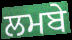
ਲਮਬੇ